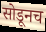
सोडूनच